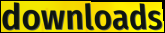
downloads